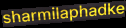
sharmilaphadke